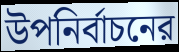
উপনির্বাচনের